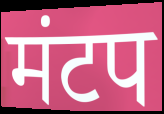
मंटप